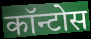
कॉन्टोस